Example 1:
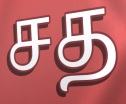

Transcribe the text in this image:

சத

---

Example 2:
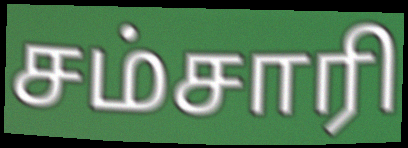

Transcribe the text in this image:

சம்சாரி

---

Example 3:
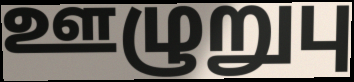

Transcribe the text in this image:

ஊழுறுபு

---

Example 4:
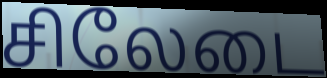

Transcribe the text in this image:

சிலேடை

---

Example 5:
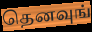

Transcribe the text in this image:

தெனவுங்